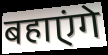
बहाएंगे